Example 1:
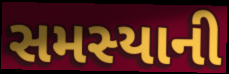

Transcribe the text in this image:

સમસ્યાની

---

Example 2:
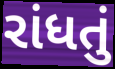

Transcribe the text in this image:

રાંધતું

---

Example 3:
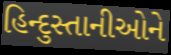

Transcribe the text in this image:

હિન્દુસ્તાનીઓને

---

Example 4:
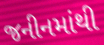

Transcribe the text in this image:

જનીનમાંથી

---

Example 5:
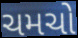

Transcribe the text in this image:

ચમચો